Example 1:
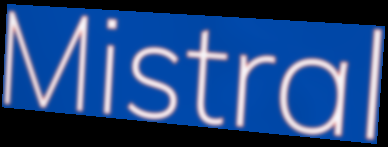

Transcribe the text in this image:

Mistral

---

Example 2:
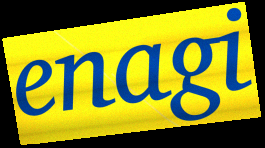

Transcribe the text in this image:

enagi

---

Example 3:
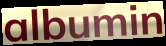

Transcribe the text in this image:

albumin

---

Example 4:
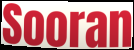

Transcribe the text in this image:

Sooran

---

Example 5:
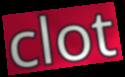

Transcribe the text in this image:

clot